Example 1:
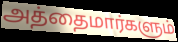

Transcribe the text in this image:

அத்தைமார்களும்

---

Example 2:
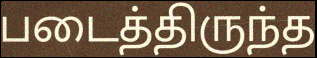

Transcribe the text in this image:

படைத்திருந்த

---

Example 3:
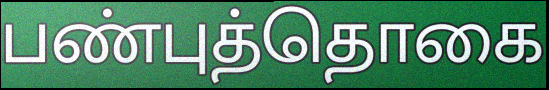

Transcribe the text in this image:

பண்புத்தொகை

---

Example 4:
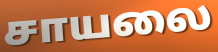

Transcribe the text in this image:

சாயலை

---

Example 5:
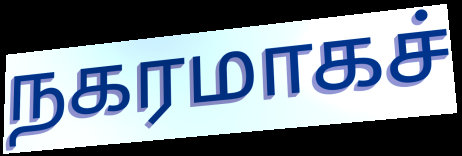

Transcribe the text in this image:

நகரமாகச்